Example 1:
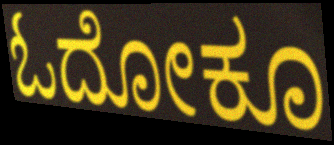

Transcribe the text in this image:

ಓದೋಕೂ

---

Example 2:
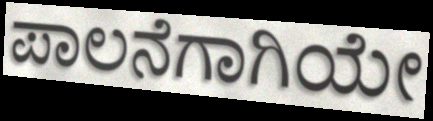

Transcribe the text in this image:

ಪಾಲನೆಗಾಗಿಯೇ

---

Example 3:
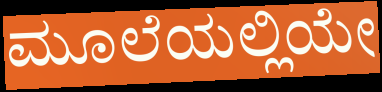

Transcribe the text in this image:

ಮೂಲೆಯಲ್ಲಿಯೇ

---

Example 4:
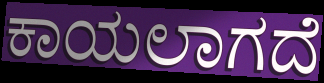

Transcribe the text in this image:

ಕಾಯಲಾಗದೆ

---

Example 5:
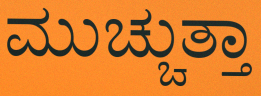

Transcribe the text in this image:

ಮುಚ್ಚುತ್ತಾ